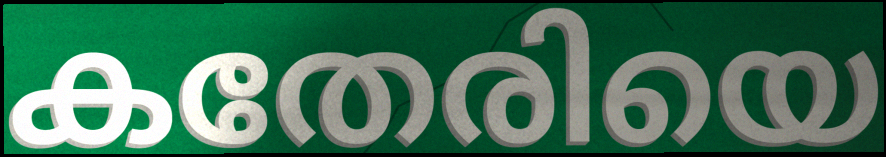
കതേരിയെ